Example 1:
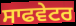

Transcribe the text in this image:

ਸਾਫਵੇਟਰ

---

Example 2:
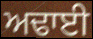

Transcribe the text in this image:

ਅਢਾਈ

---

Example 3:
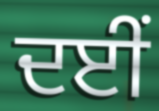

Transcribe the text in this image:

ਦਈਂ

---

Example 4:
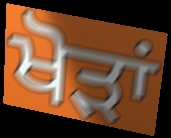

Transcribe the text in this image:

ਖੋੜਾਂ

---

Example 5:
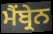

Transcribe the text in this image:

ਮੈਂਬ੍ਰੇਨ